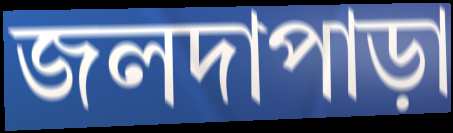
জলদাপাড়া